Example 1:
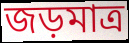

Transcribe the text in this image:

জড়মাত্র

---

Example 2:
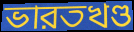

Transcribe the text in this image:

ভারতখণ্ড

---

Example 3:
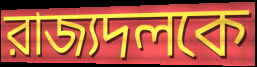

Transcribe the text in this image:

রাজ্যদলকে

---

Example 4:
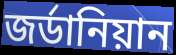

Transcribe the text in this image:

জর্ডানিয়ান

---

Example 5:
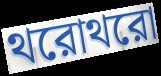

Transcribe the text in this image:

থরোথরো